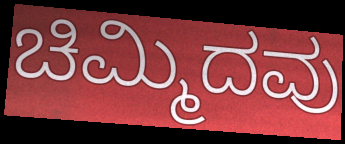
ಚಿಮ್ಮಿದವು